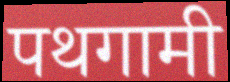
पथगामी